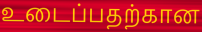
உடைப்பதற்கான